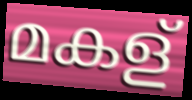
മകള്